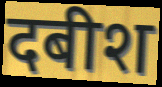
दबीश